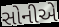
સોનીએ